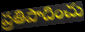
ప్రతిపాదించు